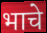
भाचे